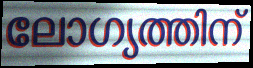
ലോഗ്യത്തിന്